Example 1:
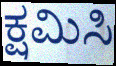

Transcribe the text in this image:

ಕ್ಷಮಿಸಿ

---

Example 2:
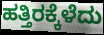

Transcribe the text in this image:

ಹತ್ತಿರಕ್ಕೆಳೆದು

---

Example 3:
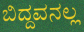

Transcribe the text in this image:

ಬಿದ್ದವನಲ್ಲ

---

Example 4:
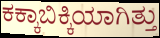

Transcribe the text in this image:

ಕಕ್ಕಾಬಿಕ್ಕಿಯಾಗಿತ್ತು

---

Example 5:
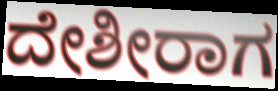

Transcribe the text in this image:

ದೇಶೀರಾಗ